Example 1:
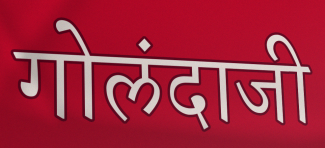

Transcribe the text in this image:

गोलंदाजी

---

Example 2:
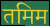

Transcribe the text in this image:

तमिम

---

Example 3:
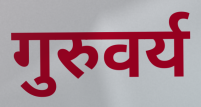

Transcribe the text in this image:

गुरुवर्य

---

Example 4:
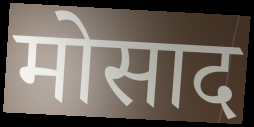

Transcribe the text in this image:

मोसाद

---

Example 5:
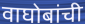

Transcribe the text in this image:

वाघोबांची